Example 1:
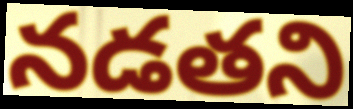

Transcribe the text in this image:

నడతని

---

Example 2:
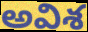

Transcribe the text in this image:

అవిశ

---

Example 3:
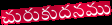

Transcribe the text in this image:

చురుకుదనము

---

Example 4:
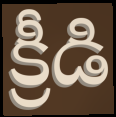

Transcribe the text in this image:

క్రీడి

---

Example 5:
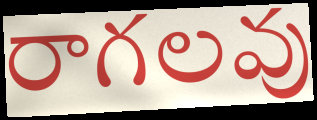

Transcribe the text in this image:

రాగలవు